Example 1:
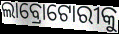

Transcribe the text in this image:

ଲାବ୍ରୋଟୋରୀକୁ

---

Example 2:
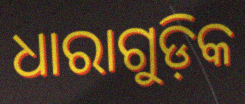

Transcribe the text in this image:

ଧାରାଗୁଡ଼ିକ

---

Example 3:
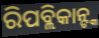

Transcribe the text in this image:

ରିପବ୍ଲିକାନ୍ଙ୍କ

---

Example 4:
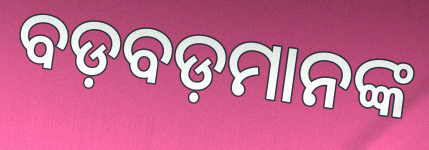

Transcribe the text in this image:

ବଡ଼ବଡ଼ମାନଙ୍କ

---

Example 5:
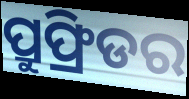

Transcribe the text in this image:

ପ୍ରୁଫ୍ରିଡର